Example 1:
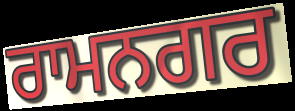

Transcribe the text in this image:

ਰਾਮਨਗਰ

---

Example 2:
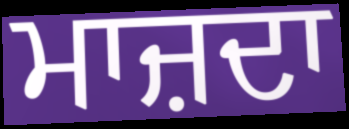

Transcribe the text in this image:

ਮਾਜ਼ਦਾ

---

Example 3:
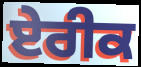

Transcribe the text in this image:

ਏਰੀਕ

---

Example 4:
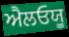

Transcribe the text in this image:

ਐਲਓਯੂ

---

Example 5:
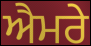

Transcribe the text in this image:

ਐਮਰੇ